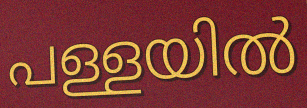
പള്ളയിൽ